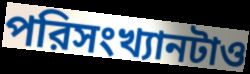
পরিসংখ্যানটাও